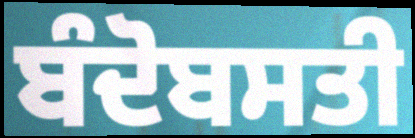
ਬੰਦੋਬਸਤੀ